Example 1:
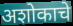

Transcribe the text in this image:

अशोकाचे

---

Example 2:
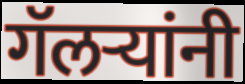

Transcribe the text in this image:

गॅलऱ्यांनी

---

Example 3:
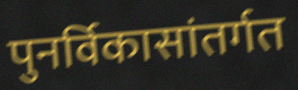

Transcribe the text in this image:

पुनर्विकासांतर्गत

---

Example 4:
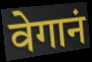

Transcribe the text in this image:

वेगानं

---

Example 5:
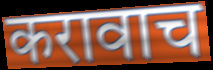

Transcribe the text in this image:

करावाच